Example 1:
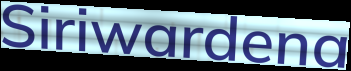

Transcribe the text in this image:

Siriwardena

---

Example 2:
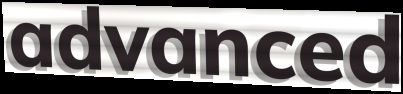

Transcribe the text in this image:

advanced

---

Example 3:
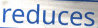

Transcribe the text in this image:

reduces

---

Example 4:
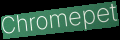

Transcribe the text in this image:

Chromepet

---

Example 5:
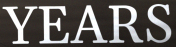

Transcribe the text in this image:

YEARS